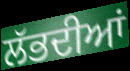
ਲੱਭਦੀਆਂ